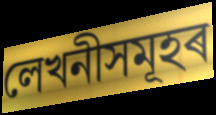
লেখনীসমূহৰ